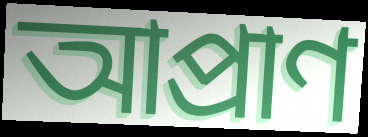
আপ্রাণ